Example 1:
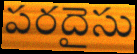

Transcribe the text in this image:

పరదైసు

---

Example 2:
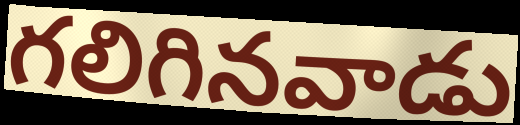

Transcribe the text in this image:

గలిగినవాడు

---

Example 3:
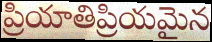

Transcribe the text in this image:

ప్రియాతిప్రియమైన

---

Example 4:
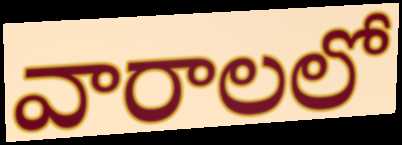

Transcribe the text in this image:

వారాలలో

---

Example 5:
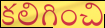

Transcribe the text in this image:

కలిగించి